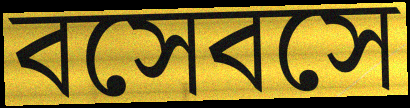
বসেবসে